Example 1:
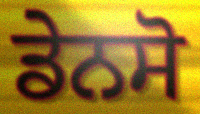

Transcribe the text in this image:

ਡੇਨਸੋ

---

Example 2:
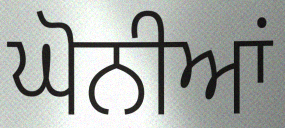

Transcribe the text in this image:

ਘੋਨੀਆਂ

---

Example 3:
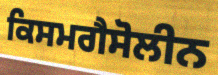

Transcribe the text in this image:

ਕਿਸਮਗੈਸੋਲੀਨ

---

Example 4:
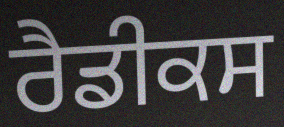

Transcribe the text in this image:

ਰੈਡੀਕਸ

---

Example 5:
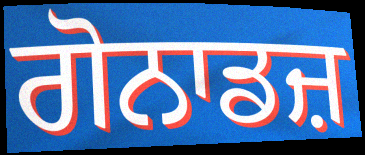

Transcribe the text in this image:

ਗੋਨਾਡਜ਼